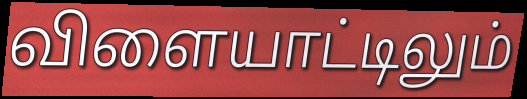
விளையாட்டிலும்